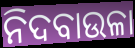
ନିଦବାଉଳା